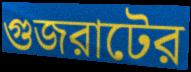
গুজরাটের